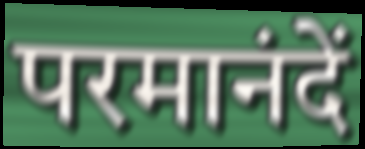
परमानंदें